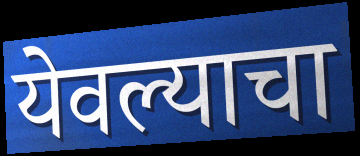
येवल्याचा